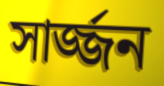
সার্জ্জন